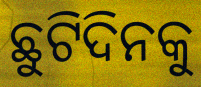
ଛୁଟିଦିନକୁ